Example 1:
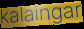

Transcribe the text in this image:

kalaingar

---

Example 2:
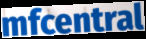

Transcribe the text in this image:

mfcentral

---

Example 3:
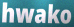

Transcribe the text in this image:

hwako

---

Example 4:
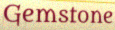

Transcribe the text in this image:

Gemstone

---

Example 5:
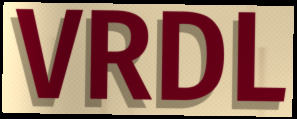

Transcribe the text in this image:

VRDL